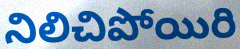
నిలిచిపోయిరి